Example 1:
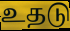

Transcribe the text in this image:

உதடு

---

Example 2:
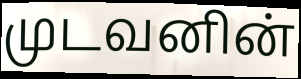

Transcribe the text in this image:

முடவனின்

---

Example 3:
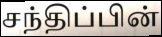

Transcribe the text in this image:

சந்திப்பின்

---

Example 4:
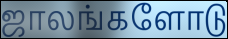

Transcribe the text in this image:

ஜாலங்களோடு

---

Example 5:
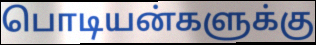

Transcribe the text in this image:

பொடியன்களுக்கு